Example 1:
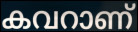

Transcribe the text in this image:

കവറാണ്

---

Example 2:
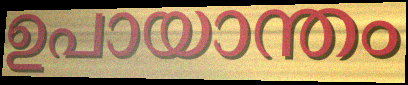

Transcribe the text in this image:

ഉപായാന്തം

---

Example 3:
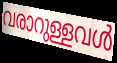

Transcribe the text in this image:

വരാറുള്ളവൾ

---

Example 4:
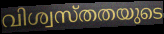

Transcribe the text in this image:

വിശ്വസ്തതയുടെ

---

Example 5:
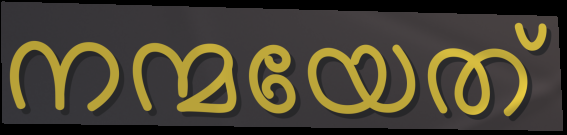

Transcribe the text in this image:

നന്മയേത്